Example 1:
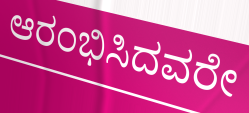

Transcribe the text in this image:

ಆರಂಭಿಸಿದವರೇ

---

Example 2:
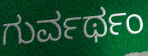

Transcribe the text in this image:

ಗುರ್ವರ್ಥಂ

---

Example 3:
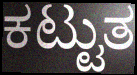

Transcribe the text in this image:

ಕಟ್ಟುತ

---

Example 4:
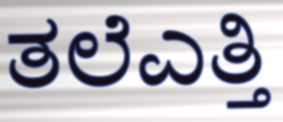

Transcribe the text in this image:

ತಲೆಎತ್ತಿ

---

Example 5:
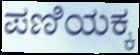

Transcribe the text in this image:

ಪಣಿಯಕ್ಕ